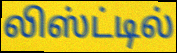
லிஸ்ட்டில்